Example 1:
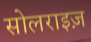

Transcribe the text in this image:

सोलराइज़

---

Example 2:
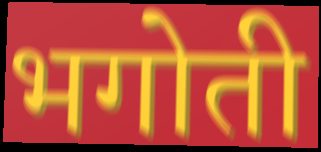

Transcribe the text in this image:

भगोती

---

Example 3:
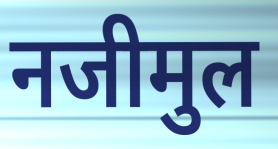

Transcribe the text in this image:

नजीमुल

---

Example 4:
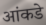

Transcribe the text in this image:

आंकडे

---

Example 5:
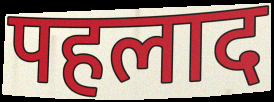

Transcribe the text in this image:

पहलाद